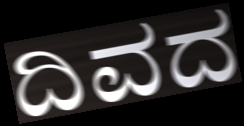
ದಿವದ